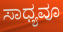
ಸಾಧ್ಯವೂ